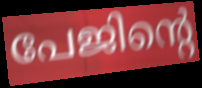
പേജിന്റെ